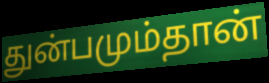
துன்பமும்தான்